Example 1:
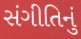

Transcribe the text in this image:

સંગીતિનું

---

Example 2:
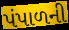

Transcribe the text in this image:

પંપાળની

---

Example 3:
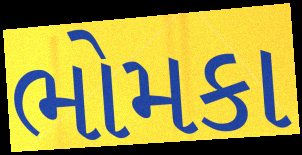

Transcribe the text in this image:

ભોમકા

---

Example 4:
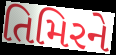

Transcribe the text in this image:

તિમિરને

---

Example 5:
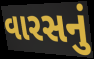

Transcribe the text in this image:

વારસનું